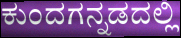
ಕುಂದಗನ್ನಡದಲ್ಲಿ